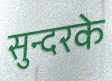
सुन्दरके